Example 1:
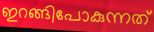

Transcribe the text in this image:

ഇറങ്ങിപോകുന്നത്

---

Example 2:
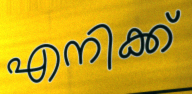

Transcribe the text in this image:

എനിക്ക്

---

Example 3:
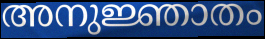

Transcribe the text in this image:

അനുജ്ഞാതം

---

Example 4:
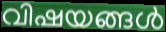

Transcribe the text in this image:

വിഷയങ്ങൾ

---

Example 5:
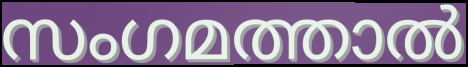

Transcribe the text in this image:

സംഗമത്താൽ